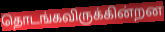
தொடங்கவிருக்கின்றன